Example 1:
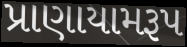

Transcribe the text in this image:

પ્રાણાયામરૂપ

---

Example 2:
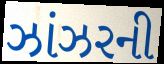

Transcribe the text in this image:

ઝાંઝરની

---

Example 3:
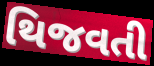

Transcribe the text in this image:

થિજવતી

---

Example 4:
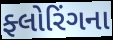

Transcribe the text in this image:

ફ્લોરિંગના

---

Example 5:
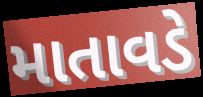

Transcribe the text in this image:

માતાવડે